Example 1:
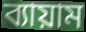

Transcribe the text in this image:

ব্যায়াম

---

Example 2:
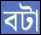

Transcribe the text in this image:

বটা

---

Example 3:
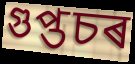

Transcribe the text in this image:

গুপ্তচৰ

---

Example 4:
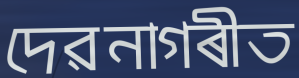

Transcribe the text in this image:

দেৱনাগৰীত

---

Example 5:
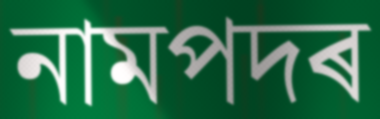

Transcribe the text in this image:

নামপদৰ